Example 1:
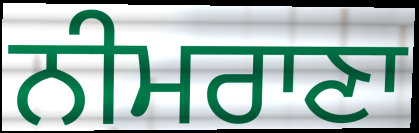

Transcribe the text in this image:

ਨੀਮਰਾਣਾ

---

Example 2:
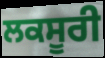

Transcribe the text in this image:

ਲਕਸੂਰੀ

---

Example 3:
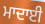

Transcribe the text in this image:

ਮਾਦਾਈ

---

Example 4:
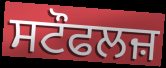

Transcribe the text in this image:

ਸਟੌਫਲਜ਼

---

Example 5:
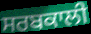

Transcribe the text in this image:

ਸਰਬਕਾਲੀ